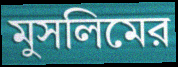
মুসলিমের